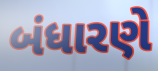
બંધારણે